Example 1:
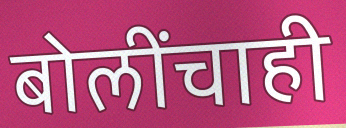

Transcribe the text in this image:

बोलींचाही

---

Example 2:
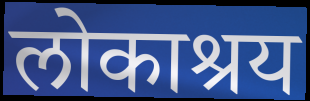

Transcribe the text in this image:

लोकाश्रय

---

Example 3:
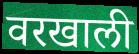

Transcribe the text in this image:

वरखाली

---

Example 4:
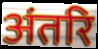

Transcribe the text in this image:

अंतरि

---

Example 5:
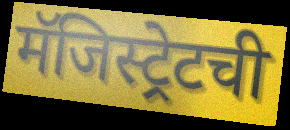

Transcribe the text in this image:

मॅजिस्ट्रेटची